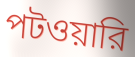
পটওয়ারি